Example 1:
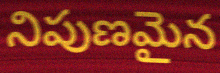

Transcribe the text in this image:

నిపుణమైన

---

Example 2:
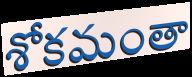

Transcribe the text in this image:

శోకమంతా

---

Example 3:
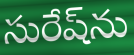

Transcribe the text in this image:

సురేష్‌ను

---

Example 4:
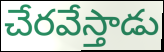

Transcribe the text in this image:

చేరవేస్తాడు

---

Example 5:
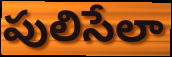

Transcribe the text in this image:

పులిసేలా